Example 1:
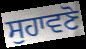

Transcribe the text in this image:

ਸੁਹਾਵਣੋ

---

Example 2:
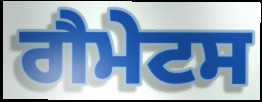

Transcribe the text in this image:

ਗੈਮੇਟਸ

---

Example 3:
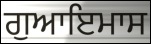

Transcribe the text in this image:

ਗੁਆਇਮਾਸ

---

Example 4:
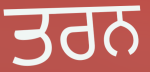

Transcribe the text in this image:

ਤਰਨ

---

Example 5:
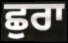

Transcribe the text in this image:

ਛੁਰਾ